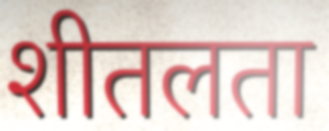
शीतलता